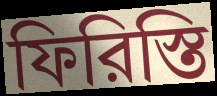
ফিরিস্তি